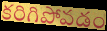
కరిగిపోవడం